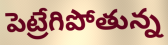
పెట్రేగిపోతున్న